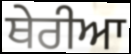
ਥੇਰੀਆ